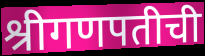
श्रीगणपतीची